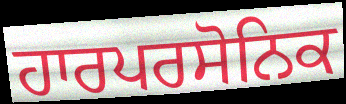
ਹਾਰਪਰਸੋਨਿਕ